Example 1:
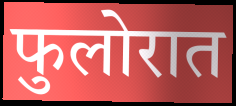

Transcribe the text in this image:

फुलोरात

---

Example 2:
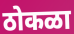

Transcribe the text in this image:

ठोकळा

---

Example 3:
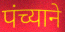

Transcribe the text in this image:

पंच्याने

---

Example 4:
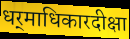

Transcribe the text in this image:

धर्माधिकारदीक्षा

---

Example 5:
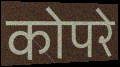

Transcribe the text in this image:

कोपरे